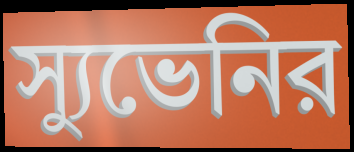
স্যুভেনির